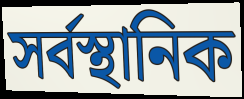
সর্বস্থানিক